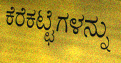
ಕೆರೆಕಟ್ಟೆಗಳನ್ನು